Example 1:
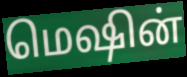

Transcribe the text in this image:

மெஷின்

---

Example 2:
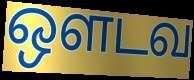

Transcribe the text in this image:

ஔடவ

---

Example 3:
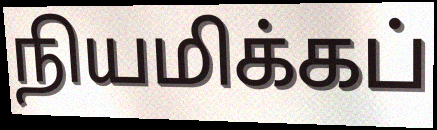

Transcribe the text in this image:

நியமிக்கப்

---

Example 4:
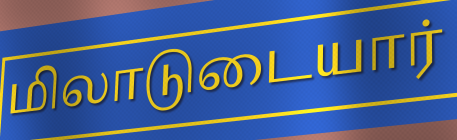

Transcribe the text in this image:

மிலாடுடையார்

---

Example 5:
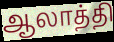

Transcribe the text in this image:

ஆலாத்தி